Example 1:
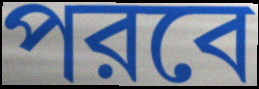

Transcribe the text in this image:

পরবে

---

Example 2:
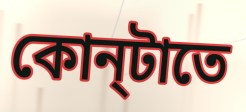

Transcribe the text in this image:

কোন্‌টাতে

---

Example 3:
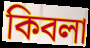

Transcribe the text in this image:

কিবলা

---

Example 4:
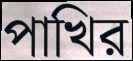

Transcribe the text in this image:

পাখির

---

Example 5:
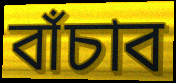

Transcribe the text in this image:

বাঁচাব